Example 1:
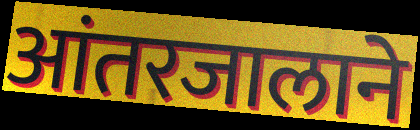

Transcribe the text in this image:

आंतरजालाने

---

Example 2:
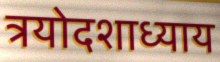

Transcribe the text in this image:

त्रयोदशाध्याय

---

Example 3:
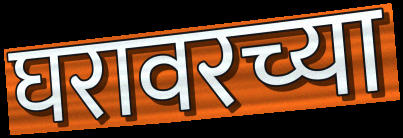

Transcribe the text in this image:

घरावरच्या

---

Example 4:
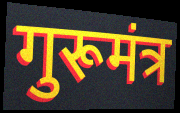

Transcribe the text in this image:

गुरूमंत्र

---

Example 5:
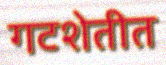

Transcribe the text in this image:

गटशेतीत